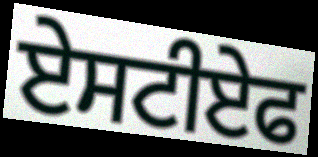
ਏਸਟੀਏਫ